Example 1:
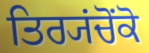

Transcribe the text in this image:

ਤਿਰ੍ਯਂਚੋਂਕੋ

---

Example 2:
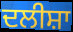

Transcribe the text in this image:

ਦਲੀਸ਼ਾ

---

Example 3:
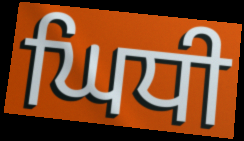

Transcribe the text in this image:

ਘਿਧੀ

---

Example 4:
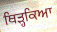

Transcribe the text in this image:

ਥਿੜ੍ਹਕਿਆ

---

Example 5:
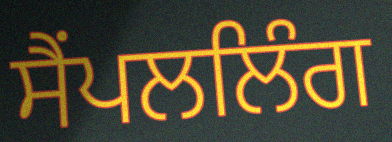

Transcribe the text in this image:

ਸੈਂਪਲਲਿੰਗ